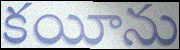
కయీను